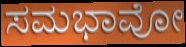
ಸಮಭಾವೋ